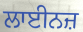
ਲਾਈਨਜ਼